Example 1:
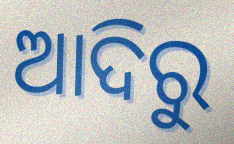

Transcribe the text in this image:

ଆଦିରୁ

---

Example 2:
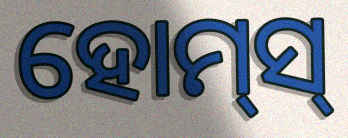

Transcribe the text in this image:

ହୋମ୍‌ସ୍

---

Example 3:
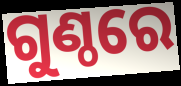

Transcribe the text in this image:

ଗୁଣ୍ଠରେ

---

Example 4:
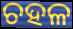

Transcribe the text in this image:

ଚହଳ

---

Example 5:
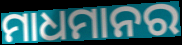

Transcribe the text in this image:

ମାଧମାନର